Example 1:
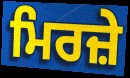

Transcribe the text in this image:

ਮਿਰਜ਼ੇ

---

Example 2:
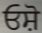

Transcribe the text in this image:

ਓਸ਼ੋ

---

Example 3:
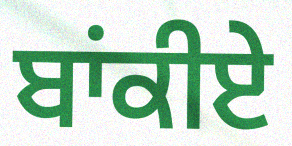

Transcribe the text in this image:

ਬਾਂਕੀਏ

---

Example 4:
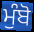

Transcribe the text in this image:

ਮੁੰਬੋ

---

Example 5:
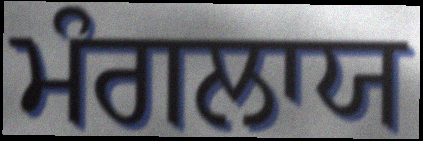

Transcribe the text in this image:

ਮੰਗਲਾਯ